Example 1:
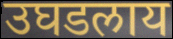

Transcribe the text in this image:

उघडलाय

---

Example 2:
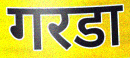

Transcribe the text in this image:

गरडा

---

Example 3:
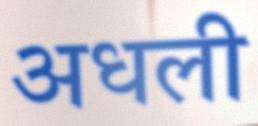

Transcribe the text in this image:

अधली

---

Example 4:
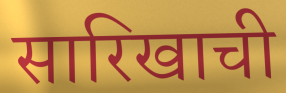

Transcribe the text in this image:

सारिखाची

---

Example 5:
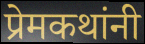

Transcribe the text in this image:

प्रेमकथांनी